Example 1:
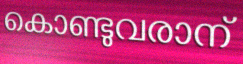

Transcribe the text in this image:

കൊണ്ടുവരാന്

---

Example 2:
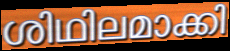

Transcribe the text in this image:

ശിഥിലമാക്കി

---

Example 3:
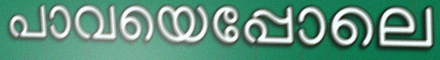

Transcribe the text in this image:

പാവയെപ്പോലെ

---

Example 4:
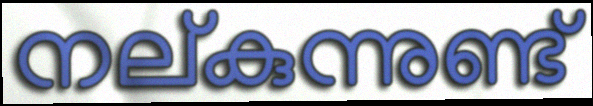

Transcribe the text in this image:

നല്കുന്നുണ്ട്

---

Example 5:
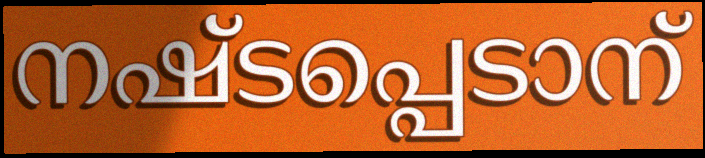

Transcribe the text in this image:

നഷ്ടപ്പെടാന്